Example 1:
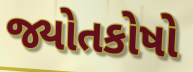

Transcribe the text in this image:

જ્યોતકોષો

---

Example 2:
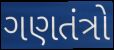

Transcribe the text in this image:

ગણતંત્રો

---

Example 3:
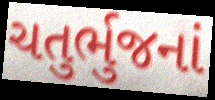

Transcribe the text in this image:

ચતુર્ભુજનાં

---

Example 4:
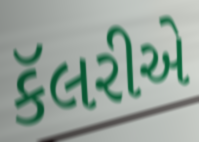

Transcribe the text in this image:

કૅલરીએ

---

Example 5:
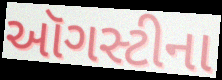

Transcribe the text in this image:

ઑગસ્ટીના